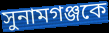
সুনামগঞ্জকে